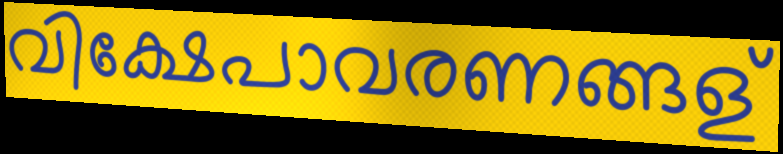
വിക്ഷേപാവരണങ്ങള്